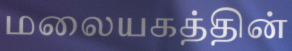
மலையகத்தின்